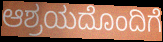
ಆಶ್ರಯದೊಂದಿಗೆ